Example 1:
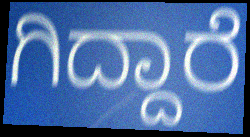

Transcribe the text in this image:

ಗಿದ್ದಾರೆ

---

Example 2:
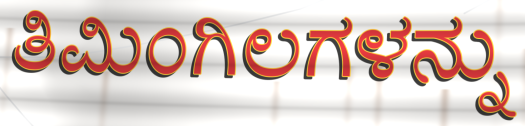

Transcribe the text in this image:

ತಿಮಿಂಗಿಲಗಳನ್ನು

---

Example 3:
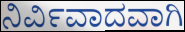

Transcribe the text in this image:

ನಿರ್ವಿವಾದವಾಗಿ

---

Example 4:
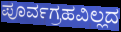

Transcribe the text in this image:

ಪೂರ್ವಗ್ರಹವಿಲ್ಲದ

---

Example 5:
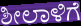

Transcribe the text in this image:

ಶೀಲಾಳಿಗೆ